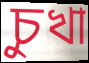
চুখা